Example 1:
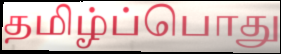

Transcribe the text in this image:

தமிழ்ப்பொது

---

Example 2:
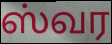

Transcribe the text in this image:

ஸ்வர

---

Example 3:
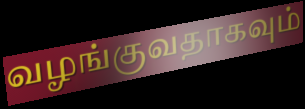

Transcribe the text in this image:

வழங்குவதாகவும்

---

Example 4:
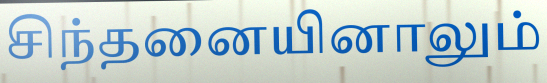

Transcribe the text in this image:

சிந்தனையினாலும்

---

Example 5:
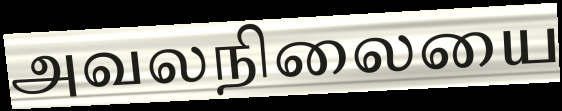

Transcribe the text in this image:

அவலநிலையை